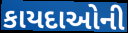
કાયદાઓની